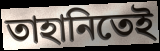
তাহানিতেই